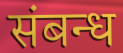
संबन्ध